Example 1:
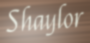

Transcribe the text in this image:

Shaylor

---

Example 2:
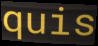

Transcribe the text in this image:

quis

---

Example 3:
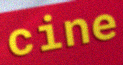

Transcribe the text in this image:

cine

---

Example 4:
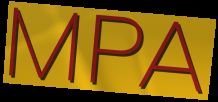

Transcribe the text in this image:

MPA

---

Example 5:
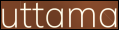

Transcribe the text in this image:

uttama